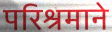
परिश्रमाने